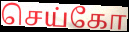
செய்கோ